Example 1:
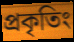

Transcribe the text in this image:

প্রকৃতিং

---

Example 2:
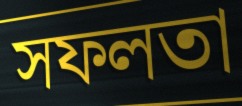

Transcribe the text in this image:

সফলতা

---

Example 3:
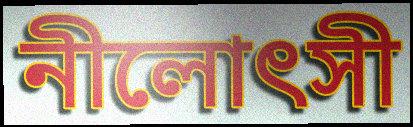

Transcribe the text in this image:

নীলোৎসী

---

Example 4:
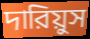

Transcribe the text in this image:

দারিয়ুস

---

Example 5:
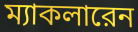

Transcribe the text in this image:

ম্যাকলারেন